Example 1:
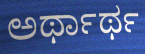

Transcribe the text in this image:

ಅರ್ಥಾರ್ಥ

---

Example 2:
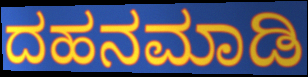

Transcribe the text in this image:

ದಹನಮಾಡಿ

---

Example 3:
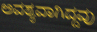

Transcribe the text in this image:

ಅವಶ್ಯವಾಗಿದ್ದವು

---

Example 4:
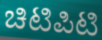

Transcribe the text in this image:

ಚಿಟಿಪಿಟಿ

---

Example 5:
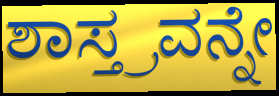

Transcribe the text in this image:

ಶಾಸ್ತ್ರವನ್ನೇ